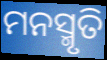
ମନସ୍ମୃତି